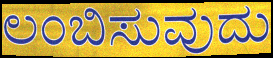
ಲಂಬಿಸುವುದು